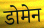
डोमेन